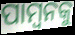
ପାମ୍ବନକୁ